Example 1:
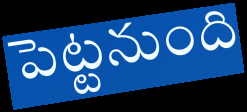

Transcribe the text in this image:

పెట్టనుంది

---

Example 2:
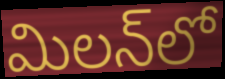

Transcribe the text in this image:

మిలన్‌లో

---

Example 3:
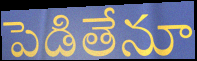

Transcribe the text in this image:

పెడితేనూ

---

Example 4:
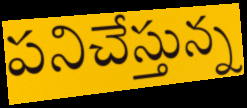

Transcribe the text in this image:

పనిచేస్తున్న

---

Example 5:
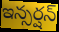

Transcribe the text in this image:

ఇన్సర్షన్